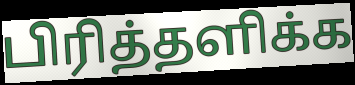
பிரித்தளிக்க